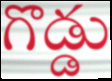
గొడ్డు